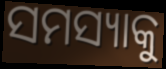
ସମସ୍ଯାକୁ